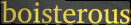
boisterous